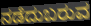
ನಡೆದುಬರುವ